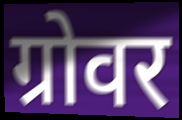
ग्रोवर